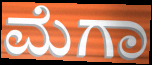
ಮೆಗಾ